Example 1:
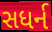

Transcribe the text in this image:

સધર્ન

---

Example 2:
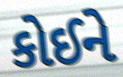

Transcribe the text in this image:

કોઈને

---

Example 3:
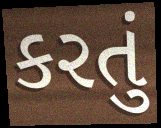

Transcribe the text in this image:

કરતું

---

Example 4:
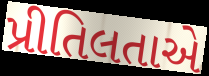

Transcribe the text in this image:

પ્રીતિલતાએ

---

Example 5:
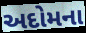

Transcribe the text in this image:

અદોમના